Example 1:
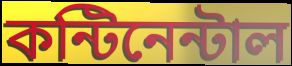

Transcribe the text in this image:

কন্টিনেন্টাল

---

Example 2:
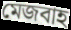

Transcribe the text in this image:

মেজবাহ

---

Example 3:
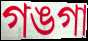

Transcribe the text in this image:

গঙগা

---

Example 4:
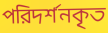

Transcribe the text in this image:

পরিদর্শনকৃত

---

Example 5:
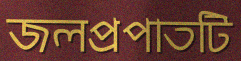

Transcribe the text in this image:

জলপ্রপাতটি